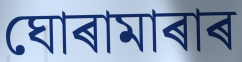
ঘোৰামাৰাৰ